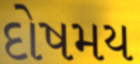
દોષમય